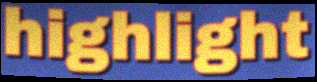
highlight